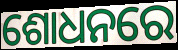
ଶୋଧନରେ